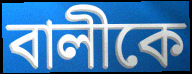
বালীকে